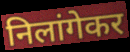
निलांगेकर